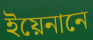
ইয়েনানে